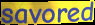
savored